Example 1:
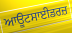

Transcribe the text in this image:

ਆਊਟਸਾਈਡਰਜ਼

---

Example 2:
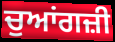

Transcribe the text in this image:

ਚੁਆਂਗਜ਼ੀ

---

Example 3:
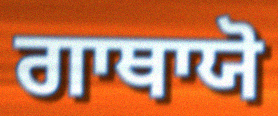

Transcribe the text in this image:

ਗਾਥਾਯੋ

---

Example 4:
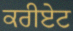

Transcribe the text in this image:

ਕਰੀਏਟ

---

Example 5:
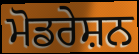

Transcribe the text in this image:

ਮੋਡਰੇਸ਼ਨ